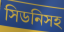
সিডনিসহ